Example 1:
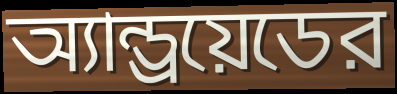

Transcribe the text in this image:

অ্যান্ড্রয়েডের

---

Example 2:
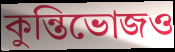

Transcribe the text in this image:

কুন্তিভোজও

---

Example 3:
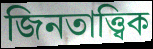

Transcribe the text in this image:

জিনতাত্ত্বিক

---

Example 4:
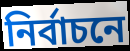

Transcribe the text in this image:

নির্বাচনে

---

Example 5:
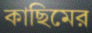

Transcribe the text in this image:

কাছিমের